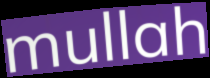
mullah